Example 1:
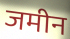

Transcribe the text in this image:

जमीन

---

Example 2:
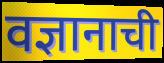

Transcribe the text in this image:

वज्ञानाची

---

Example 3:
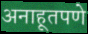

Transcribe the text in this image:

अनाहूतपणे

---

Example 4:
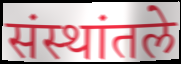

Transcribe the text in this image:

संस्थांतले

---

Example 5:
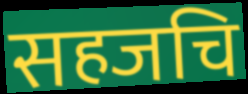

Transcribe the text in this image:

सहजचि